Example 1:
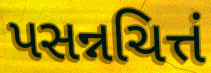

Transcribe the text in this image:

પસન્નચિત્તં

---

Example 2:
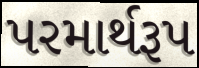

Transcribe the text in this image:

પરમાર્થરૂપ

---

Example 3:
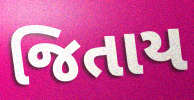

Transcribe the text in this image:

જિતાય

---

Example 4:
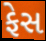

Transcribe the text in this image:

ફેસ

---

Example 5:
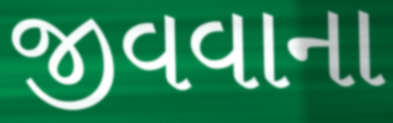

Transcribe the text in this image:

જીવવાના